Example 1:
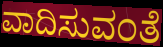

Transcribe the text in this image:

ವಾದಿಸುವಂತೆ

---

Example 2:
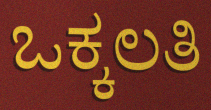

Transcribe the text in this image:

ಒಕ್ಕಲತಿ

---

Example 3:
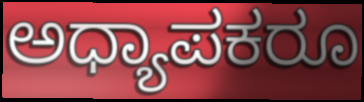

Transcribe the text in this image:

ಅಧ್ಯಾಪಕರೂ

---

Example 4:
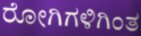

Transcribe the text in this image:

ರೋಗಿಗಳಿಗಿಂತ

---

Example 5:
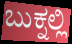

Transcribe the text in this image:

ಬುಕ್ನಲ್ಲಿ